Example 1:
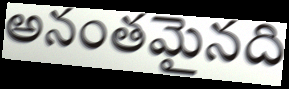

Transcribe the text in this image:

అనంతమైనది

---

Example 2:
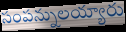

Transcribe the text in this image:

సంపన్నులయ్యారు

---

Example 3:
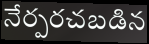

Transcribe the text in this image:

నేర్పరచబడిన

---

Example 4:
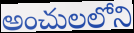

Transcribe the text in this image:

అంచులలోని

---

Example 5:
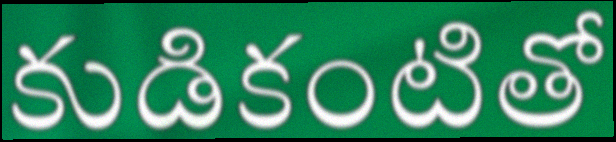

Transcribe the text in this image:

కుడికంటితో